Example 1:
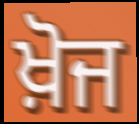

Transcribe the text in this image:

ਖ਼ੋਜ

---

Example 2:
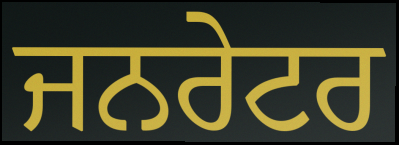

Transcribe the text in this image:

ਜਨਰੇਟਰ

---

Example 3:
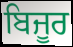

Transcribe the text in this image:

ਬਿਜੂਰ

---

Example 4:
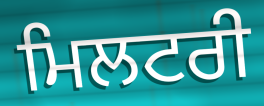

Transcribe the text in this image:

ਮਿਲਟਰੀ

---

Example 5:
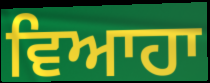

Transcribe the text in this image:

ਵਿਆਹਾ